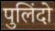
पुलिंदो